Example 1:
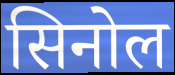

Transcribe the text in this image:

सिनोल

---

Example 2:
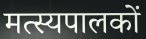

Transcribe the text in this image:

मत्स्यपालकों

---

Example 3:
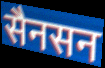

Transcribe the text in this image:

सैनसन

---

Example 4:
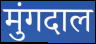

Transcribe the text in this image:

मुंगदाल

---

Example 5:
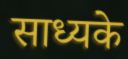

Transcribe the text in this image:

साध्यके